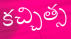
కచ్చిత్స